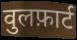
वुलफ़ार्ट